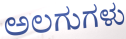
ಅಲಗುಗಳು